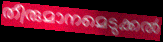
തീരുമാനമെടുക്കൽ